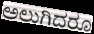
ಅಲುಗಿದರೂ